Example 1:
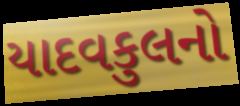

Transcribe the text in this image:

યાદવકુલનો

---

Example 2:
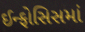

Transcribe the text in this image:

ઈન્ફોસિસમાં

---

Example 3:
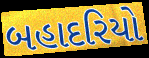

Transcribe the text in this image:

બહાદરિયો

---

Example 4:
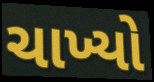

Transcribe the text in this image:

ચાખ્યો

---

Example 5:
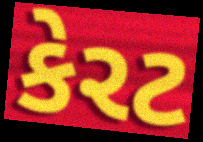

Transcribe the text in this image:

કેરટ